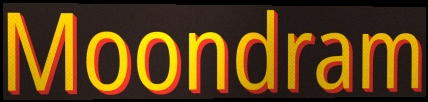
Moondram